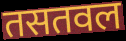
तसतवल